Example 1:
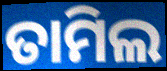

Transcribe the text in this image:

ତାମିଲ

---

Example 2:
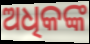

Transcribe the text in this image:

ଅଧିକଙ୍କ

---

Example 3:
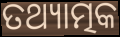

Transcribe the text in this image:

ତଥ୍ୟାତ୍ମକ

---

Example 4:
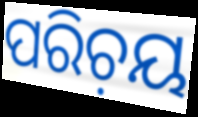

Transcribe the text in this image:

ପରିଚ଼ୟ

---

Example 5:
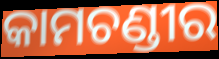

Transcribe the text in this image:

କାମଚଣ୍ଡୀର